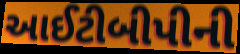
આઈટીબીપીની